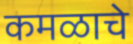
कमळाचे